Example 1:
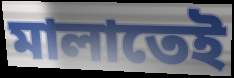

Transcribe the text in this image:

মালাতেই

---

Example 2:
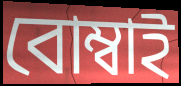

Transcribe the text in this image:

বোম্বাই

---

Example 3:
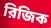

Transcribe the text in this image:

রিজিক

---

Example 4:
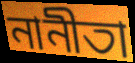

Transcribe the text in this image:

নানীতা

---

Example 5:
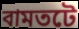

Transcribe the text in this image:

বামতটে